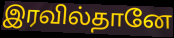
இரவில்தானே